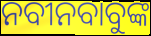
ନବୀନବାବୁଙ୍କ